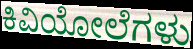
ಕಿವಿಯೋಲೆಗಳು